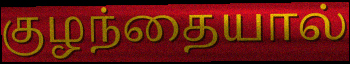
குழந்தையால்